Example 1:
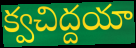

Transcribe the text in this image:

క్వచిద్దయా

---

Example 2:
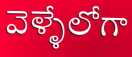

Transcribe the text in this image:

వెళ్ళేలోగా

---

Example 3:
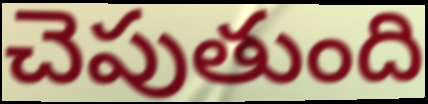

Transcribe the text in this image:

చెపుతుంది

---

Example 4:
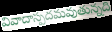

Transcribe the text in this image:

వివాదాస్పదమవుతున్నది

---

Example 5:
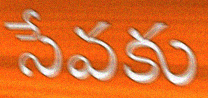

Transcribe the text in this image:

సేవకు